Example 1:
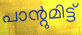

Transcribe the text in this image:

പാന്റുമിട്ട്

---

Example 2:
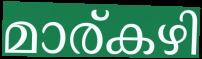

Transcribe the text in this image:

മാര്കഴി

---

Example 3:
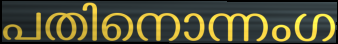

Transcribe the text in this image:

പതിനൊന്നംഗ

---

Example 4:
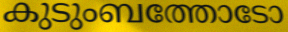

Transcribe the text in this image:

കുടുംബത്തോടോ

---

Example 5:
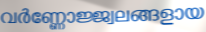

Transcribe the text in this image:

വർണ്ണോജ്ജ്വലങ്ങളായ